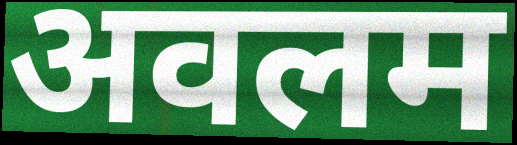
अवलम